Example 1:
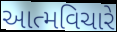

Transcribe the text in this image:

આત્મવિચારે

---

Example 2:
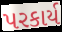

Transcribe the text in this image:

પરકાર્ય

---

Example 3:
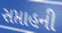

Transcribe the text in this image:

સપ્તાહની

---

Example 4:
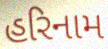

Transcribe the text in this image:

હરિનામ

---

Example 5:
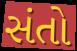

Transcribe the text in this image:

સંતો